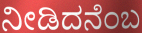
ನೀಡಿದನೆಂಬ